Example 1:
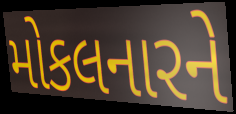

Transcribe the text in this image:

મોકલનારને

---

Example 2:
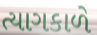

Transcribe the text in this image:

ત્યાગકાળે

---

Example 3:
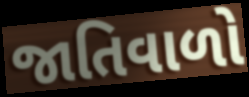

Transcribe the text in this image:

જાતિવાળો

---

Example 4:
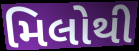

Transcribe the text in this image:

મિલોથી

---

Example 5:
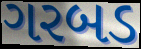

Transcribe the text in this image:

ગરબડ